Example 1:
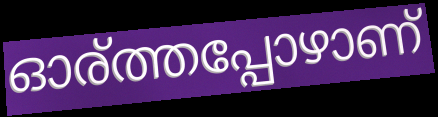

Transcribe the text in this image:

ഓര്ത്തപ്പോഴാണ്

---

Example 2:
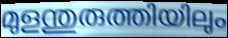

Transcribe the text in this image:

മുളന്തുരുത്തിയിലും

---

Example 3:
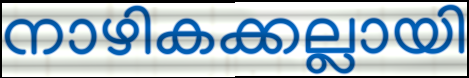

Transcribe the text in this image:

നാഴികക്കല്ലായി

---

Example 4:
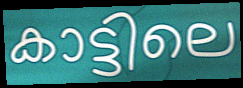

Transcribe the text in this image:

കാട്ടിലെ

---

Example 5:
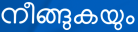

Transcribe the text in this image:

നീങ്ങുകയും